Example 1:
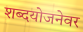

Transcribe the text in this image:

शब्दयोजनेवर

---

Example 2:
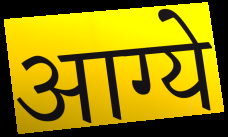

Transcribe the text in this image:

आग्ये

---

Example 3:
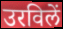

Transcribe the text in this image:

उरविलें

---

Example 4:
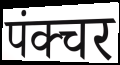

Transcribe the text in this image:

पंक्चर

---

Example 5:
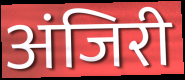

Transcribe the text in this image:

अंजिरी